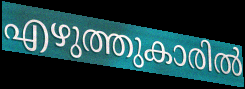
എഴുത്തുകാരിൽ